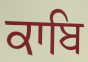
ਕਾਬਿ